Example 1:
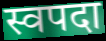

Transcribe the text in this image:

स्वपदा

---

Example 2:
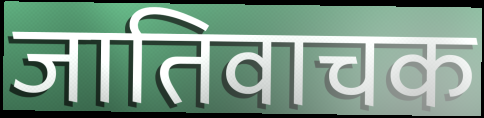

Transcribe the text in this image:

जातिवाचक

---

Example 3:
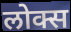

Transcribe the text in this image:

लोक्स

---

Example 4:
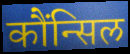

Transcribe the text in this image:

कौंन्सिल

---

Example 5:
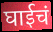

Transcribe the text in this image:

घाईचं